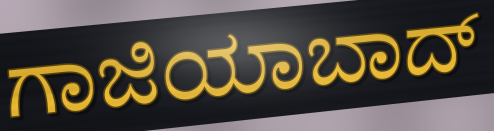
ಗಾಜಿಯಾಬಾದ್